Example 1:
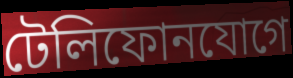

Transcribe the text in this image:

টেলিফোনযোগে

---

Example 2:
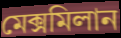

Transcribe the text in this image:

মেক্সমিলান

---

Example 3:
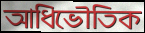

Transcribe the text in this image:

আধিভৌতিক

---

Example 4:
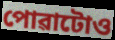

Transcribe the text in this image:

পোৱাটোও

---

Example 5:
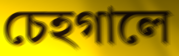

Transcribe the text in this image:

চেহগালে